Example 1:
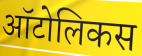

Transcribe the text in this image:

ऑटोलिकस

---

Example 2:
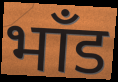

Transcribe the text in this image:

भाँड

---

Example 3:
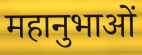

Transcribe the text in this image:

महानुभाओं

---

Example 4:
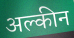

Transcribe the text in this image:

अल्कीन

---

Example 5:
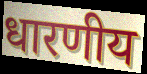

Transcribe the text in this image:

धारणीय